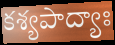
కశ్యపాద్యాః